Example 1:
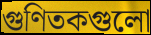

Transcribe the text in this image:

গুণিতকগুলো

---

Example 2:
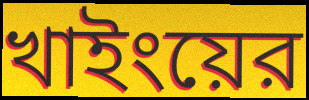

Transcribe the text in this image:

খাইংয়ের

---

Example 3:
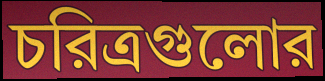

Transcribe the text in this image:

চরিত্রগুলোর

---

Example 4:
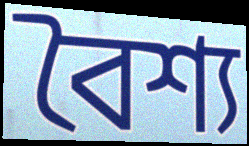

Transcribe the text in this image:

বৈশ্য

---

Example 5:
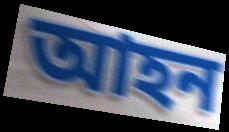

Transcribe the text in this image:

আহন